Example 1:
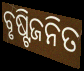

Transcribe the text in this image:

ବୃଷ୍ଟିଜନିତ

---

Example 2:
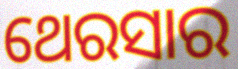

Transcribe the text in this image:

ଥେରସାର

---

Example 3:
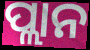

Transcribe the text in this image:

ପ୍ଲାନ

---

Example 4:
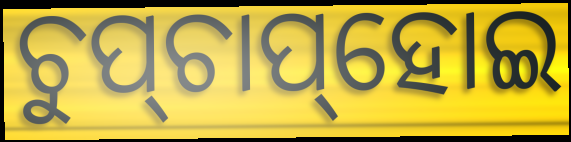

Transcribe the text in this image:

ଚୁପ୍‌ଚାପ୍‌ହୋଇ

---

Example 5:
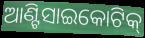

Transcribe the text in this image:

ଆଣ୍ଟିସାଇକୋଟିକ୍